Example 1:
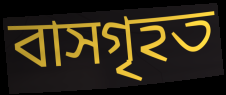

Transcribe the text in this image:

বাসগৃহত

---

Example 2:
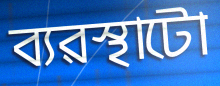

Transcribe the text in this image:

ব্যৱস্থাটো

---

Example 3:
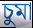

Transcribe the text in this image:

চুমা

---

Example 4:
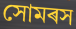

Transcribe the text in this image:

সোমৰস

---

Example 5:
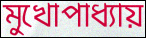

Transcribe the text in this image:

মুখোপাধ্যায়